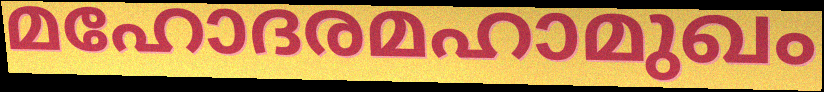
മഹോദരമഹാമുഖം